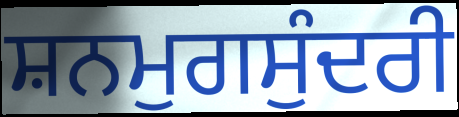
ਸ਼ਨਮੁਗਸੁੰਦਰੀ